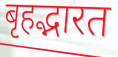
बृहद्भारत